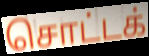
சொட்டக்